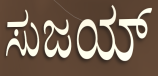
ಸುಜಯ್